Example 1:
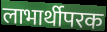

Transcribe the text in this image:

लाभार्थीपरक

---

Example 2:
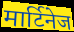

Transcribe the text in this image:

मार्टिनेज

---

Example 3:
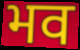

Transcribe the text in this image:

भव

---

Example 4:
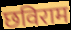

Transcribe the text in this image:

छविराम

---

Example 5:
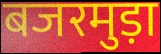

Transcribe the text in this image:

बजरमुड़ा